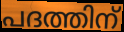
പദത്തിന്